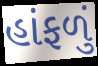
હાંફળું